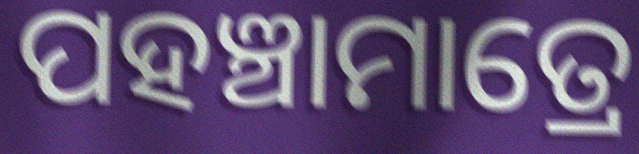
ପହଞ୍ଚାମାତ୍ରେ